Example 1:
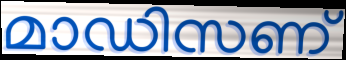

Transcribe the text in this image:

മാഡിസണ്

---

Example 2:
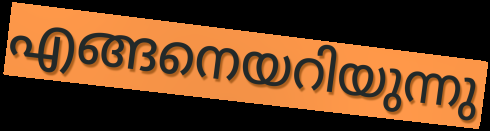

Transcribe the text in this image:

എങ്ങനെയറിയുന്നു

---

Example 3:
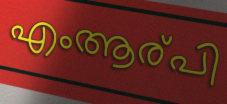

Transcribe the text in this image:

എംആര്പി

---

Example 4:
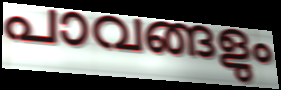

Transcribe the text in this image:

പാവങ്ങളും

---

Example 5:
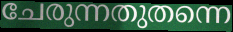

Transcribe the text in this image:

ചേരുന്നതുതന്നെ